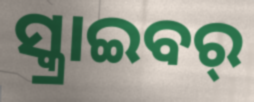
ସ୍କ୍ରାଇବର୍